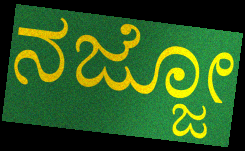
ನಜ್ಜೋ